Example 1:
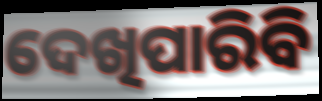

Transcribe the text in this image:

ଦେଖିପାରିବି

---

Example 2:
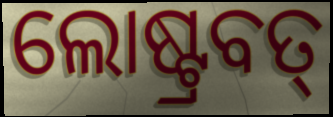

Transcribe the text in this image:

ଲୋଷ୍ଟ୍ରବତ୍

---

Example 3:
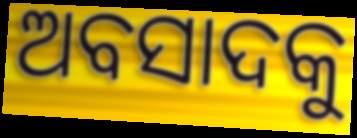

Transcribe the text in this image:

ଅବସାଦକୁ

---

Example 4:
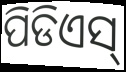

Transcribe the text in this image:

ପିଡିଏସ୍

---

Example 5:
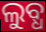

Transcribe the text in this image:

ଲୁବ୍ଧ